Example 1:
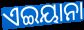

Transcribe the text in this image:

ଏଇୟାନା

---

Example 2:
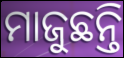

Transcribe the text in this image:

ମାଜୁଛନ୍ତି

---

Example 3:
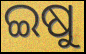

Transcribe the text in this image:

ଇଷୁ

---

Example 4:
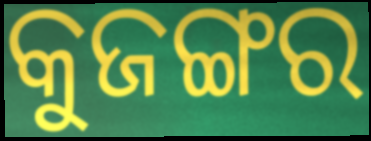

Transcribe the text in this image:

କୁଜଙ୍ଗର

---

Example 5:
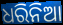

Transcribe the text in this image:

ଧରିନିଆ